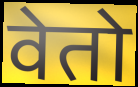
वेतो